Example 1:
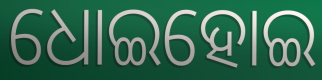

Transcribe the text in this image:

ଧୋଇହୋଇ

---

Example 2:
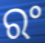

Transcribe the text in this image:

ରଂ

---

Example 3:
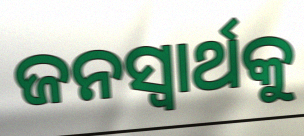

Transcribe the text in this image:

ଜନସ୍ବାର୍ଥକୁ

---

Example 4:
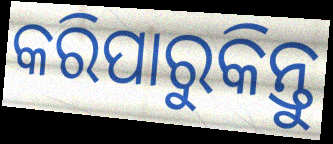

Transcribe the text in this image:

କରିପାରୁକିନ୍ତୁ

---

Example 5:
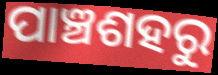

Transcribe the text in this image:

ପାଞ୍ଚଶହରୁ